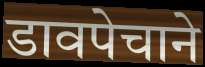
डावपेचाने